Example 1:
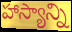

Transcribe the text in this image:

హాస్యాన్ని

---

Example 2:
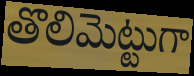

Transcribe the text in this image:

తొలిమెట్టుగా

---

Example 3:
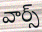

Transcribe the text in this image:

వార్స్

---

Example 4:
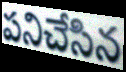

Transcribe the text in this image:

పనిచేసిన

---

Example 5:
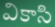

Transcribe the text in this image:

వికాసి